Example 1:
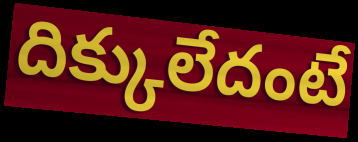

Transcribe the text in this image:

దిక్కులేదంటే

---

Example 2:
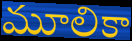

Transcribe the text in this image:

మూలికా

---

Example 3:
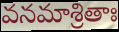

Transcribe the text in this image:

వనమాశ్రితాః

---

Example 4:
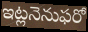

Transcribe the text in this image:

ఇట్లనెనుఫరో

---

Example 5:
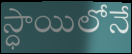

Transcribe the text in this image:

స్ధాయిలోనే